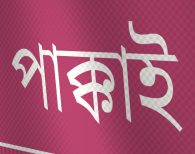
পাক্কাই